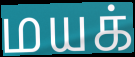
மயக்